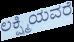
ಲಕ್ಷ್ಮಿಯವರೆ